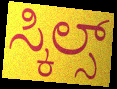
ಸ್ಕಿಲ್ಸ್